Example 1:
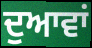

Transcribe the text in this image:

ਦੁਆਵਾਂ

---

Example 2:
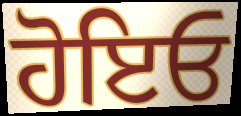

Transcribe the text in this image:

ਹੋਇਓ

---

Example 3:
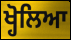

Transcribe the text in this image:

ਖ੍ਹੋਲਿਆ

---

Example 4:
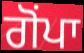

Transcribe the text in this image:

ਗੋਂਪਾ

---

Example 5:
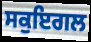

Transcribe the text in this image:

ਸਕੁਇਗਲ